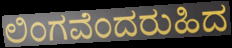
ಲಿಂಗವೆಂದರುಹಿದ